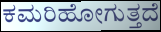
ಕಮರಿಹೋಗುತ್ತದೆ